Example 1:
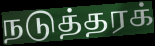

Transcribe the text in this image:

நடுத்தரக்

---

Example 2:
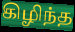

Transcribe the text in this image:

கிழிந்த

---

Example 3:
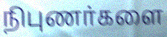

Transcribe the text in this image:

நிபுணர்களை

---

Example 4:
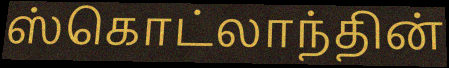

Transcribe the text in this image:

ஸ்கொட்லாந்தின்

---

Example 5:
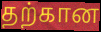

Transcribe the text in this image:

தற்கான